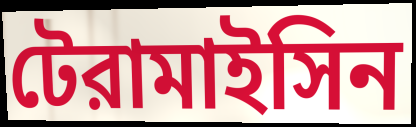
টেরামাইসিন